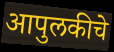
आपुलकीचे